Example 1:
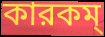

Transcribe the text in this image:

কারকম্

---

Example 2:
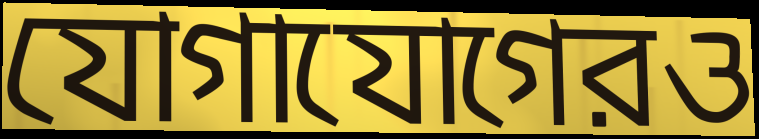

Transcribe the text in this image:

যোগাযোগেরও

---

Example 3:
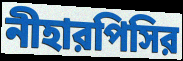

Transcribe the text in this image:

নীহারপিসির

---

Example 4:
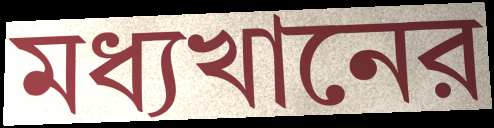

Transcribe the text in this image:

মধ্যখানের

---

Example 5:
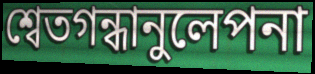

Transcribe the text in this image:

শ্বেতগন্ধানুলেপনা